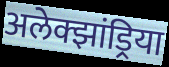
अलेक्झांड्रिया